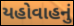
યહોવાહનું